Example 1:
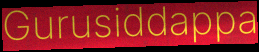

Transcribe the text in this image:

Gurusiddappa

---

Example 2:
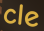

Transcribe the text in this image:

cle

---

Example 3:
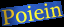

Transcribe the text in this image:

Poiein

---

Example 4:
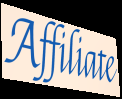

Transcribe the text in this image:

Affiliate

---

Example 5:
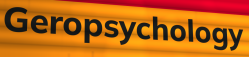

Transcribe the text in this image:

Geropsychology